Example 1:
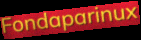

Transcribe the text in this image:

Fondaparinux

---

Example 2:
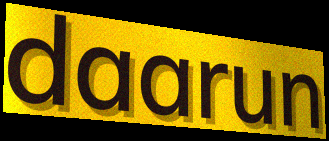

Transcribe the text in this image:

daarun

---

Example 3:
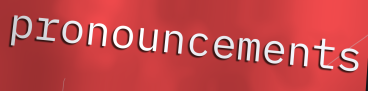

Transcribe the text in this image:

pronouncements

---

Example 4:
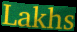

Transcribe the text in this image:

Lakhs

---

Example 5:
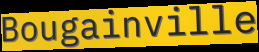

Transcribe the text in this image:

Bougainville